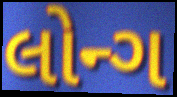
લોન્ગ